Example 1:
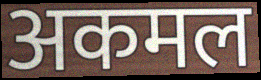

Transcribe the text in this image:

अकमल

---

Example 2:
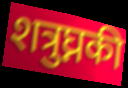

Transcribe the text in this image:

शत्रुघ्नकी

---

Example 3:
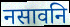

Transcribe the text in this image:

नसावनि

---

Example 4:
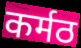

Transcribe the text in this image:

कर्मठ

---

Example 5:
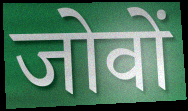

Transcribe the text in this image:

जोवों